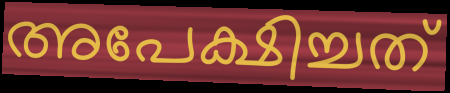
അപേക്ഷിച്ചത്